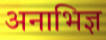
अनाभिज्ञ